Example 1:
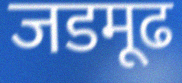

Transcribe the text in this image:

जडमूढ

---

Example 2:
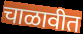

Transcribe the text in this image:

चाळावीत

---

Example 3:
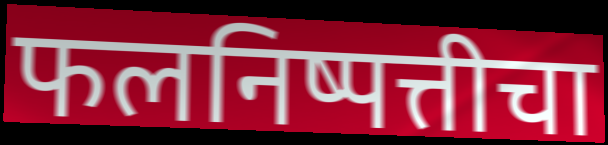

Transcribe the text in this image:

फलनिष्पत्तीचा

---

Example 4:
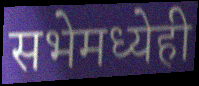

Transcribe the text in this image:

सभेमध्येही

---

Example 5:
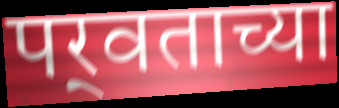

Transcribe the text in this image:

पर्वताच्या